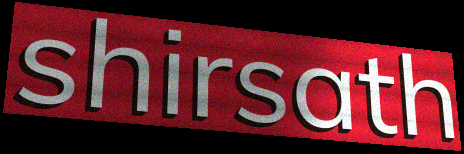
shirsath